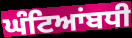
ਘੰਟਿਆਂਬਧੀ